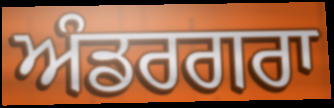
ਅੰਡਰਗਰਾ